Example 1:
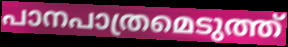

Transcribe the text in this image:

പാനപാത്രമെടുത്ത്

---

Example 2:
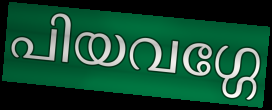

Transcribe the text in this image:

പിയവഗ്ഗേ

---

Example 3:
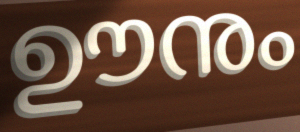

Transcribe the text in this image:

ഊനും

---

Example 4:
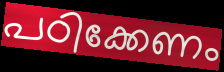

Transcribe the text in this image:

പഠിക്കേണം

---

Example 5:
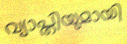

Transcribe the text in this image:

വ്യാപ്തിയുമായി